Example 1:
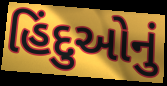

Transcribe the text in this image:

હિંદુઓનું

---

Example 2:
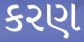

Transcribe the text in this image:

કરણ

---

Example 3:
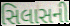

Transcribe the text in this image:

સિલાસની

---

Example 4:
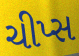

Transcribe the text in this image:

ચીપ્સ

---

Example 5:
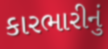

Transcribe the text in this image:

કારભારીનું